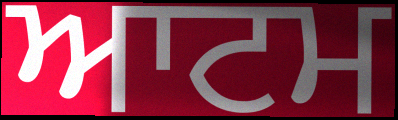
ਆਟਮ